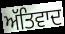
ਅੱਤਿਵਾਦ